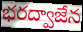
భరద్వాజేన